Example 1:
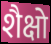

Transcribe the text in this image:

शैक्षो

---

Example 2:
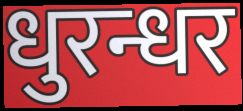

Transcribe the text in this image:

धुरन्धर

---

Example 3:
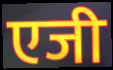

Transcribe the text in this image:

एजी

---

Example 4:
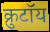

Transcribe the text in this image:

क्रुटॉय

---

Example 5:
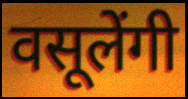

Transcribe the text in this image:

वसूलेंगी